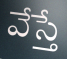
వేస్తే